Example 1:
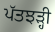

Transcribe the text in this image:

ਪੱਤਝੜ੍ਹੀ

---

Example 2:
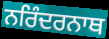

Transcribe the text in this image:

ਨਰਿੰਦਰਨਾਥ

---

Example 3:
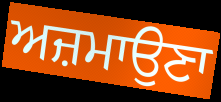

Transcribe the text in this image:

ਅਜ਼ਮਾਉਣਾ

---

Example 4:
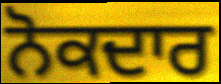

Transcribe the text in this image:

ਨੋਕਦਾਰ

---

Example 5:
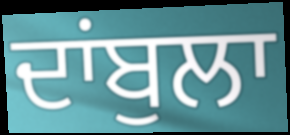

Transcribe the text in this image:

ਦਾਂਬੁਲਾ